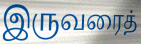
இருவரைத்